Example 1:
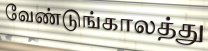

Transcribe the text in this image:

வேண்டுங்காலத்து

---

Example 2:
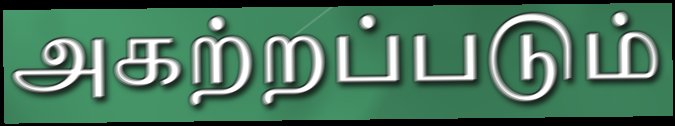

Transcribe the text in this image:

அகற்றப்படும்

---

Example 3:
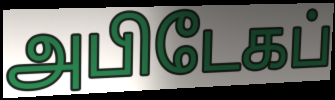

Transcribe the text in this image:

அபிடேகப்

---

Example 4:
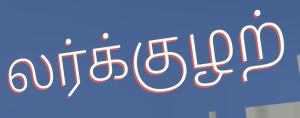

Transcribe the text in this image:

லர்க்குழற்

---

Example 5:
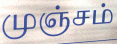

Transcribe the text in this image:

முஞ்சம்